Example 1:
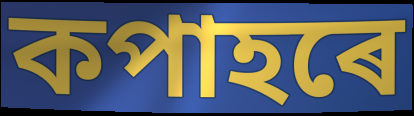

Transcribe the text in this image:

কপাহৰে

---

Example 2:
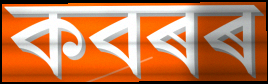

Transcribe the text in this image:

কবৰৰ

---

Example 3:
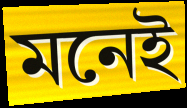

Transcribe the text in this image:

মনেই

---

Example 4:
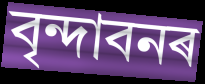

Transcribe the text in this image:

বৃন্দাবনৰ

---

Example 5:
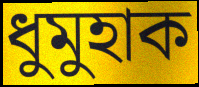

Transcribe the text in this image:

ধুমুহাক